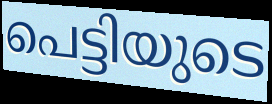
പെട്ടിയുടെ